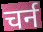
चर्न